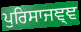
ਪੁਰਿਸਾਜਞ੍ਞ